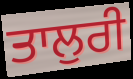
ਤਾਲੁਰੀ